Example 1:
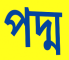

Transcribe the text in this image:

পদ্ম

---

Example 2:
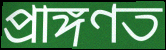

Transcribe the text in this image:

প্ৰাঙ্গণত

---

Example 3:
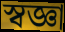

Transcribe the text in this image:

স্বজ্ঞা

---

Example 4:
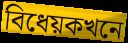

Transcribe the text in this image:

বিধেয়কখনে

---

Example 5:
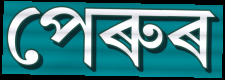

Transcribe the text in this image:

পেৰুৰ